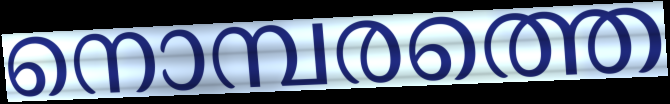
നൊമ്പരത്തെ